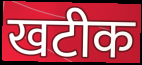
खटीक